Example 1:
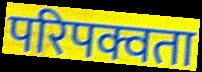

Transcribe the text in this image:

परिपक्वता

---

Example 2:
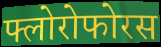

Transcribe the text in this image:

फ्लोरोफोरस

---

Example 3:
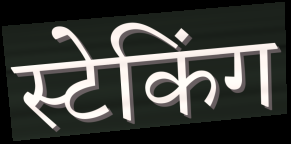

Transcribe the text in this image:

स्टेकिंग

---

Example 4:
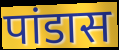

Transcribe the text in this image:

पांडास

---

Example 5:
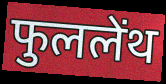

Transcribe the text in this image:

फुललेंथ